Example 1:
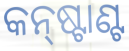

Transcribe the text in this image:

କନ୍‌ଷ୍ଟାଣ୍ଟ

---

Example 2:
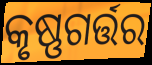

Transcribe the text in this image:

କୃଷ୍ଣଗର୍ତ୍ତର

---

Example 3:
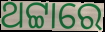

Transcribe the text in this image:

ଥଟ୍ଟାରେ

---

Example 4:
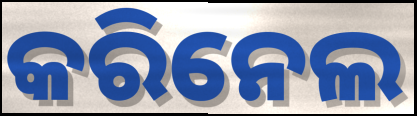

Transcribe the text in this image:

କରିନେଲ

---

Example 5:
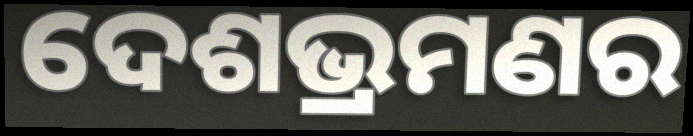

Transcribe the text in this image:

ଦେଶଭ୍ରମଣର